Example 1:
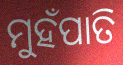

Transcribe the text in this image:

ମୁହଁପାତି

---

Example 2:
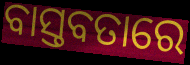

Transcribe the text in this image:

ବାସ୍ତବତାରେ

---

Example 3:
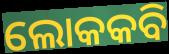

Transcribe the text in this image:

ଲୋକକବି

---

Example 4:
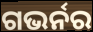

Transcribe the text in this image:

ଗଭର୍ନର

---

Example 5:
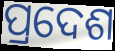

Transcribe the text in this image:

ପ୍ରଦେଶ